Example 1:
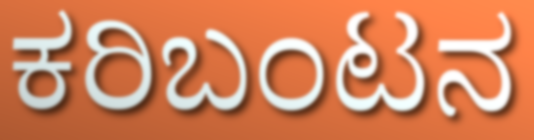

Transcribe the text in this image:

ಕರಿಬಂಟನ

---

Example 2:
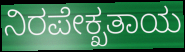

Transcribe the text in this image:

ನಿರಪೇಕ್ಖತಾಯ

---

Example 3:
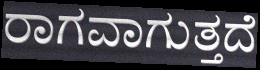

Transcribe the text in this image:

ರಾಗವಾಗುತ್ತದೆ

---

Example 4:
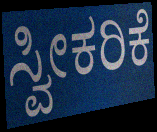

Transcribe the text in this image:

ಸ್ವೀಕರಿಕೆ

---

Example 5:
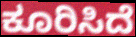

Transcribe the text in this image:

ಕೂರಿಸಿದೆ